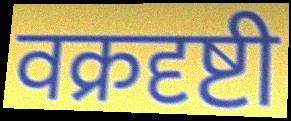
वक्रदृष्टी